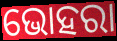
ଭୋହରା